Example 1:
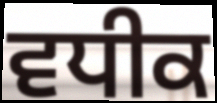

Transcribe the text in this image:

ਵਧੀਕ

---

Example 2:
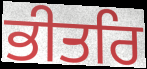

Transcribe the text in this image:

ਭੀਤਰਿ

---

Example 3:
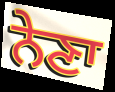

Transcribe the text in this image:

ਨੇਣਾ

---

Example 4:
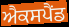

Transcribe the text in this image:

ਐਕਸਪੈਂਡ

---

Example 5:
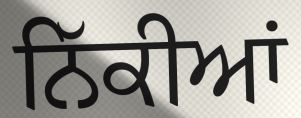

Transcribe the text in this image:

ਨਿੱਕੀਆਂ